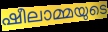
ഷീലാമ്മയുടെ